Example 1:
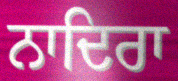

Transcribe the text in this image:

ਨਾਦਿਰਾ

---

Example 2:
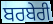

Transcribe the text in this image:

ਬਰਬੇਰੀ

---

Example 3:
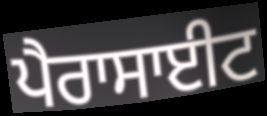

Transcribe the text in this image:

ਪੈਰਾਸਾਈਟ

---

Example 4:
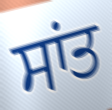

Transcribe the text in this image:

ਸਾਂਤ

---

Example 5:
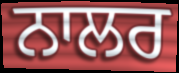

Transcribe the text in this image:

ਨਾਲਰ